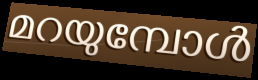
മറയുമ്പോൾ